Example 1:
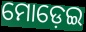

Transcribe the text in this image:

ମୋଡ଼େଇ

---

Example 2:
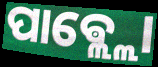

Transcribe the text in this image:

ପାଵ୍ଲ୍ଲୋ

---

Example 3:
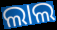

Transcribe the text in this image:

ଲାଲ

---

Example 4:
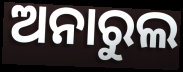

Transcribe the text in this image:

ଅନାରୁଲ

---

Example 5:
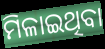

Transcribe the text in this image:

ମିଳାଇଥିବା